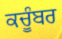
ਕਚੂੰਬਰ